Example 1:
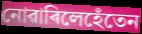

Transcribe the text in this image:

নোৱাৰিলেহেঁতেন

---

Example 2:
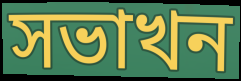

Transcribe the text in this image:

সভাখন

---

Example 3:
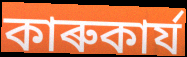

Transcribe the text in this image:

কাৰুকাৰ্য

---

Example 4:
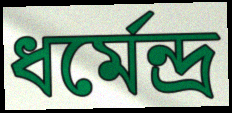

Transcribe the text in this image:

ধৰ্মেন্দ্ৰ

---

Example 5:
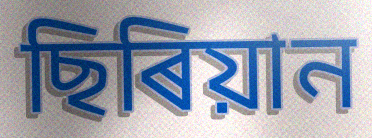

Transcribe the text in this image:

ছিৰিয়ান